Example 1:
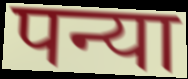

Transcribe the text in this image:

पन्या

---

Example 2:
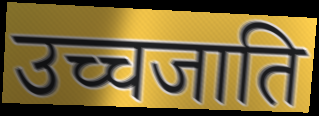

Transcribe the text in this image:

उच्चजाति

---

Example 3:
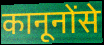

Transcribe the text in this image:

कानूनोंसे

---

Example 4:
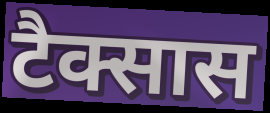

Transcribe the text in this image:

टैक्सास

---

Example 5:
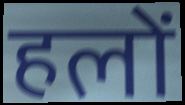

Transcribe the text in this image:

हलों